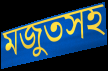
মজুতসহ